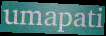
umapati